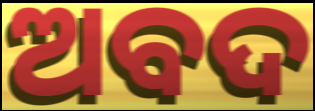
ଅବଦ